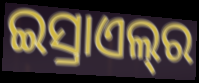
ଇସ୍ରାଏଲ୍‌ର